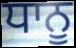
ਧਾਨੂ